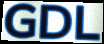
GDL